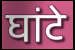
घांटे